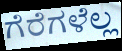
ಗೆರೆಗಳೆಲ್ಲ